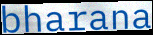
bharana